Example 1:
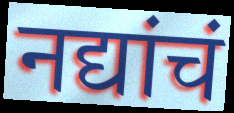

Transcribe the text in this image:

नद्यांचं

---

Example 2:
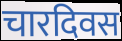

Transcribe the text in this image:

चारदिवस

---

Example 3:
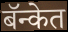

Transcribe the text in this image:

बॅन्केत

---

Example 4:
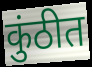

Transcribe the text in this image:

कुंठीत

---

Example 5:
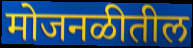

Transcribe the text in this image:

मोजनळीतील